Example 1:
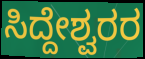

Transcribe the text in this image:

ಸಿದ್ದೇಶ್ವರರ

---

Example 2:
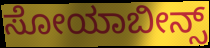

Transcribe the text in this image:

ಸೋಯಾಬೀನ್ಸ್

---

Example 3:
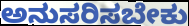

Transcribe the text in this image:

ಅನುಸರಿಸಬೇಕು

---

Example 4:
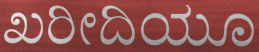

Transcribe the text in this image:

ಖರೀದಿಯೂ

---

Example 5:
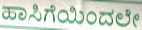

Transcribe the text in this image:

ಹಾಸಿಗೆಯಿಂದಲೇ